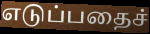
எடுப்பதைச்